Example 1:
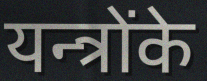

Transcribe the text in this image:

यन्त्रोंके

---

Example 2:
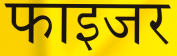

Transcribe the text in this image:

फाइजर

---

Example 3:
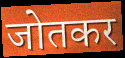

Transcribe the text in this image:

जोतकर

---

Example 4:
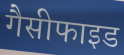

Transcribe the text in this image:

गैसीफाइड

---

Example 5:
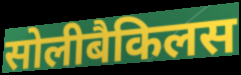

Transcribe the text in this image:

सोलीबैकिलस